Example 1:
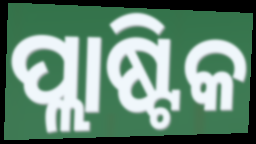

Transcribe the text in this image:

ପ୍ଲାଷ୍ଟିକ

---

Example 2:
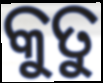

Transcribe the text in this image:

କୁତୁ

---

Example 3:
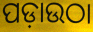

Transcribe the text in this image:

ପଡ଼ାଉଠା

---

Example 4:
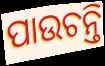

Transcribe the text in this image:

ପାଉଚନ୍ତି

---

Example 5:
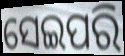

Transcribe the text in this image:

ସେଇପରି